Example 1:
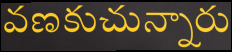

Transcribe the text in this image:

వణకుచున్నారు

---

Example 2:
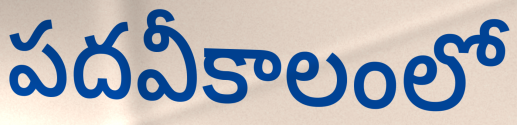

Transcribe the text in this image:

పదవీకాలంలో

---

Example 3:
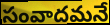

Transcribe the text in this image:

సంవాదమనే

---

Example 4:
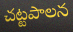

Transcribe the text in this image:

చట్టపాలన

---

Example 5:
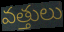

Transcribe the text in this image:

వత్తులు